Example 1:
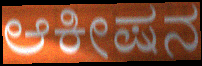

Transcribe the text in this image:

ಆಕೀಷನ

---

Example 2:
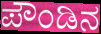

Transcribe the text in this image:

ಪೌಂಡಿನ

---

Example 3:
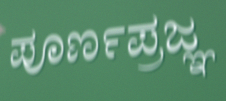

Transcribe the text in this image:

ಪೂರ್ಣಪ್ರಜ್ಞ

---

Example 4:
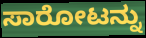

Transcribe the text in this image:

ಸಾರೋಟನ್ನು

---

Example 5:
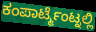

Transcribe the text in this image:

ಕಂಪಾರ್ಟ್ಮೆಂಟ್ನಲ್ಲಿ